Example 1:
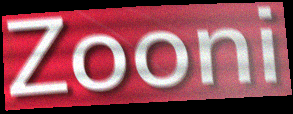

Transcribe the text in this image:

Zooni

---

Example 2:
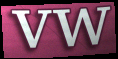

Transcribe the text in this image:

vw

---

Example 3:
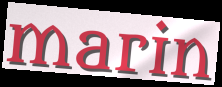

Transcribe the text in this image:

marin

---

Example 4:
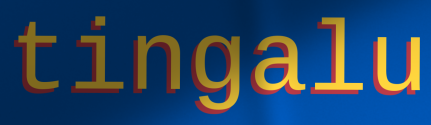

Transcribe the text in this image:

tingalu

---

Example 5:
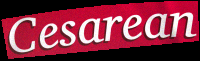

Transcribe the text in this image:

Cesarean